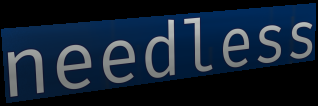
needless